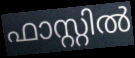
ഫാസ്റ്റിൽ